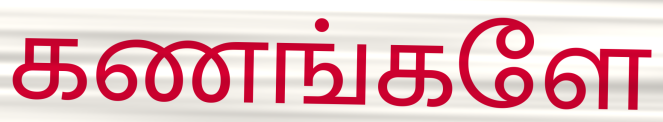
கணங்களே